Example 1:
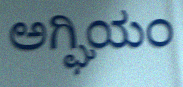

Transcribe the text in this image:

ಅಗ್ಘಿಯಂ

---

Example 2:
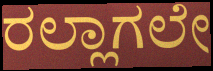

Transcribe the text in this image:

ರಲ್ಲಾಗಲೇ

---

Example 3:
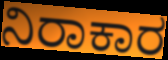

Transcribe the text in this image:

ನಿರಾಕಾರ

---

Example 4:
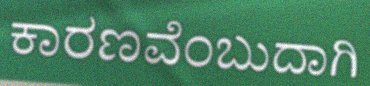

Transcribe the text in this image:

ಕಾರಣವೆಂಬುದಾಗಿ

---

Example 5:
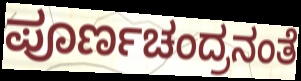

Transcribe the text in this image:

ಪೂರ್ಣಚಂದ್ರನಂತೆ